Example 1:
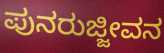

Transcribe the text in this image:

ಪುನರುಜ್ಜೀವನ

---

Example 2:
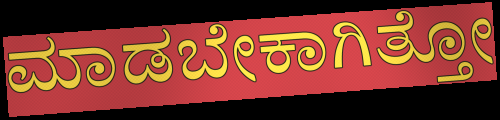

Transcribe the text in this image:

ಮಾಡಬೇಕಾಗಿತ್ತೋ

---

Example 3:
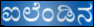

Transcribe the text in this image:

ಐಲೆಂಡಿನ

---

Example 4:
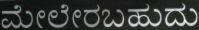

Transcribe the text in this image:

ಮೇಲೇರಬಹುದು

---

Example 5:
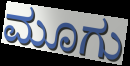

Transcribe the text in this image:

ಮೂಗು